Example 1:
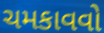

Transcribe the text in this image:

ચમકાવવો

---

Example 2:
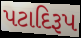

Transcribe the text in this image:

પટાદિરૂપ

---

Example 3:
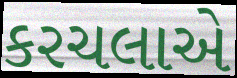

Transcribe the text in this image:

કરચલાએ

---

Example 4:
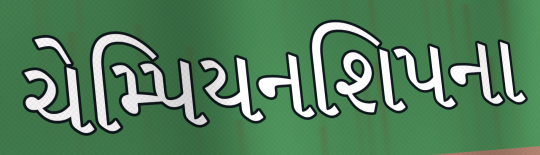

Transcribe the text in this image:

ચેમ્પિયનશિપના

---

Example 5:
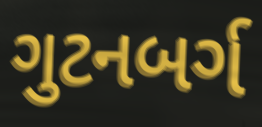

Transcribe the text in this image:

ગુટનબર્ગ